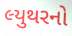
લ્યુથરનો